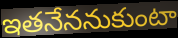
ఇతనేననుకుంటా